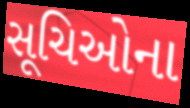
સૂચિઓના